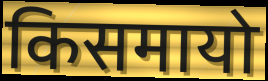
किसमायो